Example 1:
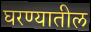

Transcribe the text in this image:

घरण्यातील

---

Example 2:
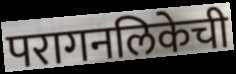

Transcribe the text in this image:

परागनलिकेची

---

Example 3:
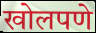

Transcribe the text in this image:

खोलपणे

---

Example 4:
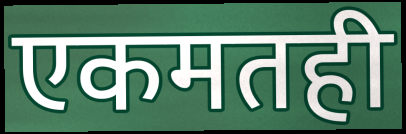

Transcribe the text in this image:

एकमतही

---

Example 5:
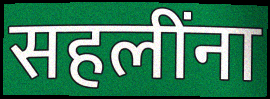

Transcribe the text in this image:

सहलींना